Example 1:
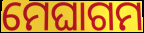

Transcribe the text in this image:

ମେଘାଗମ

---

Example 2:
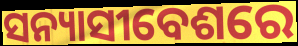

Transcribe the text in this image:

ସନ୍ୟାସୀବେଶରେ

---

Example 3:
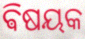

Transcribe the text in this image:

ଵିଷୟକ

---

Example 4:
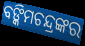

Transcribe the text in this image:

ବଙ୍କିମଚନ୍ଦ୍ରଙ୍କର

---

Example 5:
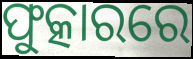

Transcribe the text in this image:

ଫୁତ୍କାରରେ